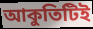
আকুতিটিই